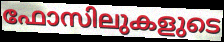
ഫോസിലുകളുടെ